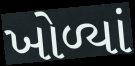
ખોળ્યાં